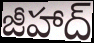
జీహాద్